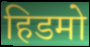
हिडमो